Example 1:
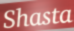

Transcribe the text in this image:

Shasta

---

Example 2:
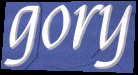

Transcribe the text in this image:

gory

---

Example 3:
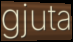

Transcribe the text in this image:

gjuta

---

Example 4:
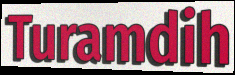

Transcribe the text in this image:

Turamdih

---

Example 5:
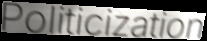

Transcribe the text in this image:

Politicization